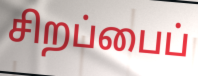
சிறப்பைப்